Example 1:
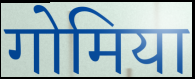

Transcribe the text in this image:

गोमिया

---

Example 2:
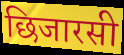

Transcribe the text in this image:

छिजारसी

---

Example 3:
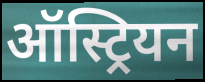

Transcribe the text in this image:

ऑस्ट्रियन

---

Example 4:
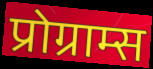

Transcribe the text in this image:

प्रोग्राम्‍स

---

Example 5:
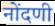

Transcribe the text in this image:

नोंदणी